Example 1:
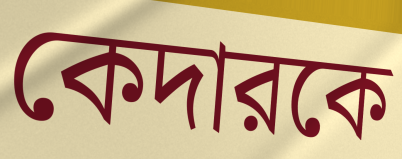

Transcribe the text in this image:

কেদারকে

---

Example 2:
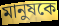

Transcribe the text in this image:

মানুষকে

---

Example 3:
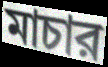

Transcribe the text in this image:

মাচার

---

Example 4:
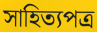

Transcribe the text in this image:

সাহিত্যপত্র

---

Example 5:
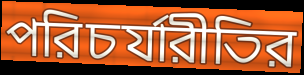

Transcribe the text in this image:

পরিচর্যারীতির